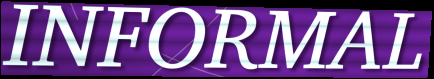
INFORMAL